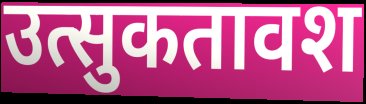
उत्सुकतावश